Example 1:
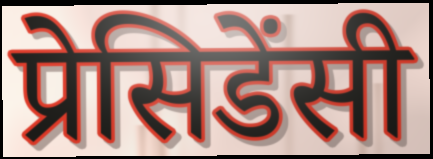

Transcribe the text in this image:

प्रेसिडेंसी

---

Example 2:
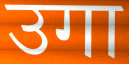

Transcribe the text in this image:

उगा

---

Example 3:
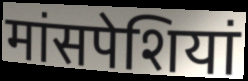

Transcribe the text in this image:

मांसपेशियां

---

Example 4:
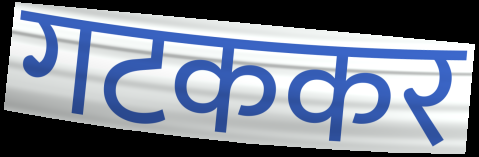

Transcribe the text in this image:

गटककर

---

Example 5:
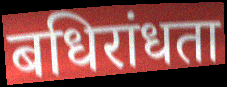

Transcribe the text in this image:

बधिरांधता